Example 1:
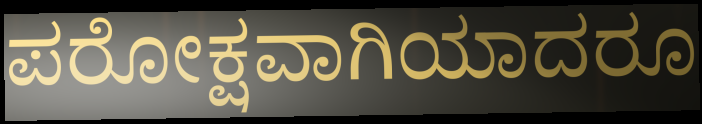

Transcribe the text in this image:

ಪರೋಕ್ಷವಾಗಿಯಾದರೂ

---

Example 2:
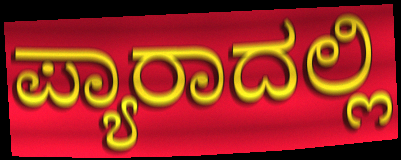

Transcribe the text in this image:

ಪ್ಯಾರಾದಲ್ಲಿ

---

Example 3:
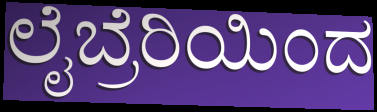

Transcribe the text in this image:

ಲೈಬ್ರೆರಿಯಿಂದ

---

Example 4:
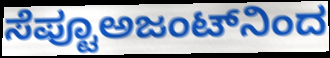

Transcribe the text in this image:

ಸೆಪ್ಟೂಅಜಂಟ್‌ನಿಂದ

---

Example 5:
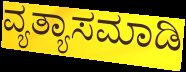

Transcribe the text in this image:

ವ್ಯತ್ಯಾಸಮಾಡಿ